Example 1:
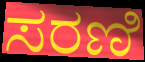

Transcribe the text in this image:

ಸರಣಿ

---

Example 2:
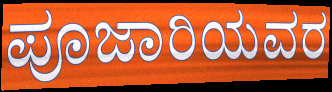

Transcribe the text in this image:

ಪೂಜಾರಿಯವರ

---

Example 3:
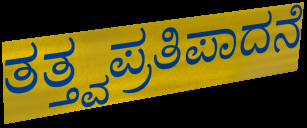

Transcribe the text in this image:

ತತ್ತ್ವಪ್ರತಿಪಾದನೆ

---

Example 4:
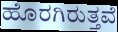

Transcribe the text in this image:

ಹೊರಗಿರುತ್ತವೆ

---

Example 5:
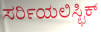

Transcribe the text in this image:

ಸರ್ರಿಯಲಿಸ್ಟಿಕ್